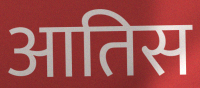
आतिस